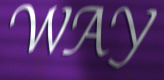
WAY